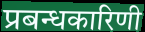
प्रबन्धकारिणी